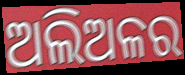
ଅଲିଅଳର